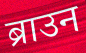
ब्राउन